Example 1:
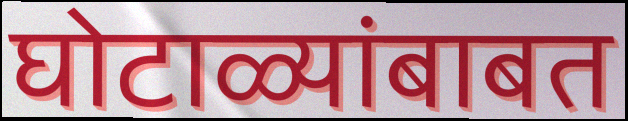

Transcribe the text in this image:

घोटाळ्यांबाबत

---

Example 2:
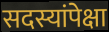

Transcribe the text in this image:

सदस्यांपेक्षा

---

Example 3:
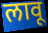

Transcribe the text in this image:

लावू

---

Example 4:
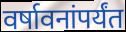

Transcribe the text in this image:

वर्षावनांपर्यंत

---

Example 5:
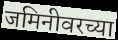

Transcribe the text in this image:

जमिनीवरच्या